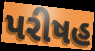
પરીષહ